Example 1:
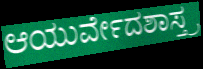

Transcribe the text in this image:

ಆಯುರ್ವೇದಶಾಸ್ತ್ರ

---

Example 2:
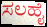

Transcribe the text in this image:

ಸಲಹೈ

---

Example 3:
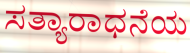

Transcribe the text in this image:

ಸತ್ಯಾರಾಧನೆಯ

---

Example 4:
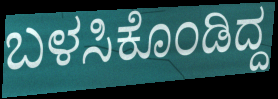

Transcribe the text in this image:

ಬಳಸಿಕೊಂಡಿದ್ದ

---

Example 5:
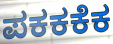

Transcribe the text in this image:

ಪಕಕಕೆಕ